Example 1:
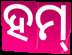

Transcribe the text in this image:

ହମ୍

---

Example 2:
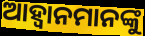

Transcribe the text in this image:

ଆହ୍ୱାନମାନଙ୍କୁ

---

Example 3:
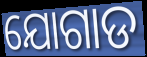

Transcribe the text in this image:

ଯୋଗାଡ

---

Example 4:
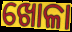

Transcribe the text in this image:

ଖୋଳା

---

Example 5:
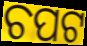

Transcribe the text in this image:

ଚପଟ